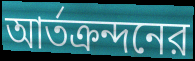
আর্তক্রন্দনের